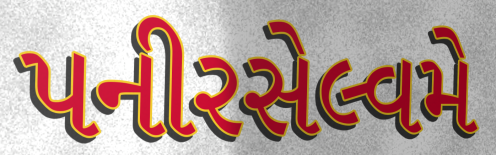
પનીરસેલ્વમે